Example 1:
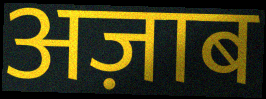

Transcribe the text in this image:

अज़ाब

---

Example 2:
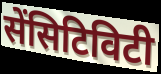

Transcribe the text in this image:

सेंसिटिविटी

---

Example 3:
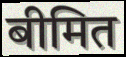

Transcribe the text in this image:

बीमित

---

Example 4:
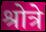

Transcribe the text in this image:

श्रोत्रे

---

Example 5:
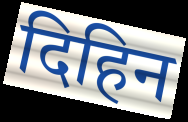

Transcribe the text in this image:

दिहिन